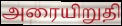
அரையிறுதி